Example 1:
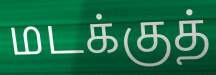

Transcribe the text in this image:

மடக்குத்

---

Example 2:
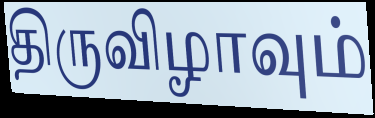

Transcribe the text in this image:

திருவிழாவும்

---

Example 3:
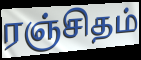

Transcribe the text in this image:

ரஞ்சிதம்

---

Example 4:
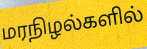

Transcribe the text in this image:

மரநிழல்களில்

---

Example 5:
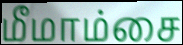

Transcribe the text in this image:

மீமாம்சை